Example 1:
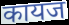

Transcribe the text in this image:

कायज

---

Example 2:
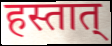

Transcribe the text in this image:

हस्तात्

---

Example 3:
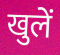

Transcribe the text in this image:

खुलें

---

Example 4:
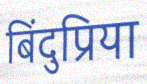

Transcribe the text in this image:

बिंदुप्रिया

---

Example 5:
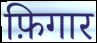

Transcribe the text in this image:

फ़िगार